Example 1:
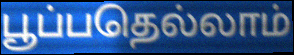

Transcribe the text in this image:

பூப்பதெல்லாம்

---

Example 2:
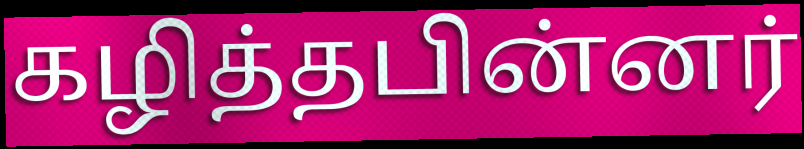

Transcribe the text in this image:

கழித்தபின்னர்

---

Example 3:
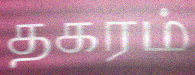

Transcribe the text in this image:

தகரம்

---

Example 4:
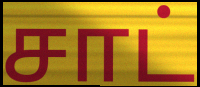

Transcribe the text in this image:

சாட்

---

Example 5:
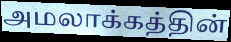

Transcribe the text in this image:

அமலாக்கத்தின்